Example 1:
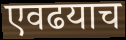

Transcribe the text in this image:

एवढयाच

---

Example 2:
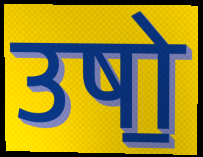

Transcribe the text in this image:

उषो॒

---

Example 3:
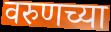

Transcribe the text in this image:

वरुणच्या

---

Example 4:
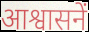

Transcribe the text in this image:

आश्वासनें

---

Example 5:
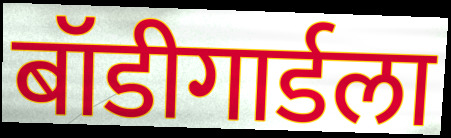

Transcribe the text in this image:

बॉडीगार्डला